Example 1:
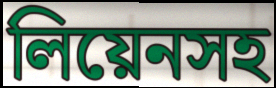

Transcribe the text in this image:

লিয়েনসহ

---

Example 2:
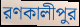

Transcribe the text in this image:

রণকালীপুর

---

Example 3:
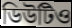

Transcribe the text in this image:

ডিউটিও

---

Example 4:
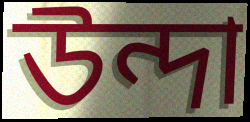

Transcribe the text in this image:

উন্দা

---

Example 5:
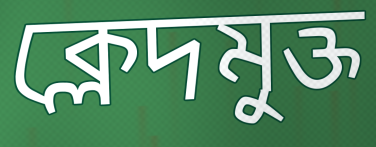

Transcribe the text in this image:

ক্লেদমুক্ত